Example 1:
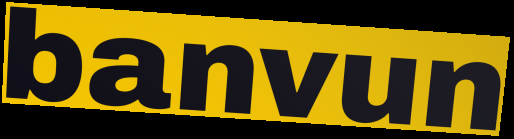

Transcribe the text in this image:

banvun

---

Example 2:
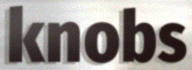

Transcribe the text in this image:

knobs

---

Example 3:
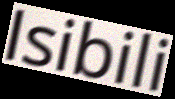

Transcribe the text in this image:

Isibili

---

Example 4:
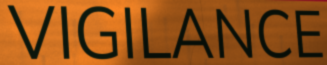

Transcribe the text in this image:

VIGILANCE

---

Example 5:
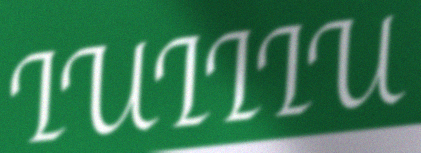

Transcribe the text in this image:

IUIIIU